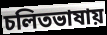
চলিতভাষায়